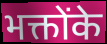
भक्तोंके